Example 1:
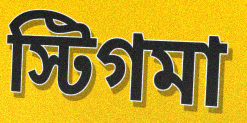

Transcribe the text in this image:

স্টিগমা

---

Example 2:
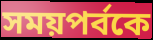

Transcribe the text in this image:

সময়পর্বকে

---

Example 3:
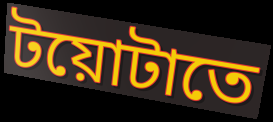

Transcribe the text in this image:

টয়োটাতে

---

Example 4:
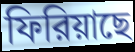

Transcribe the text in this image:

ফিরিয়াছে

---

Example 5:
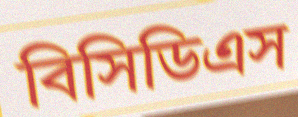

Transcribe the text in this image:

বিসিডিএস